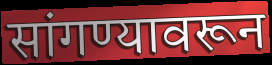
सांगण्यावरून